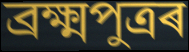
ব্ৰক্ষ্মপুত্ৰৰ